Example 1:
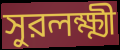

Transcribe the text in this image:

সুরলক্ষ্মী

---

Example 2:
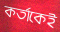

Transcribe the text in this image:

কর্তাকেই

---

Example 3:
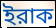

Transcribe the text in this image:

ইরাক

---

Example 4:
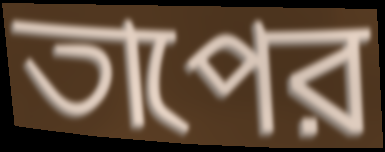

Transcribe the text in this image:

তাপের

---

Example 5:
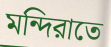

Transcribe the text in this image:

মন্দিরাতে